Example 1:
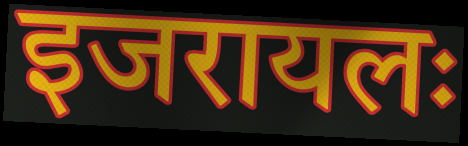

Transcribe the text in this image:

इजरायलः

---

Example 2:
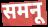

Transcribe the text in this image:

समनू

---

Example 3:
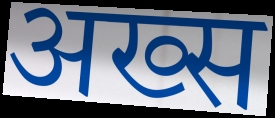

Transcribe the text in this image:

अख्स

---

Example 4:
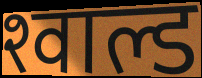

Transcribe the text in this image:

श्वाल्ड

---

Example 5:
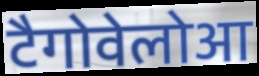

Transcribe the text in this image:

टैगोवेलोआ